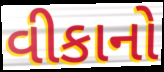
વીકાનો